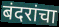
बंदरांचा